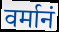
वर्मानं